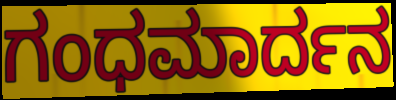
ಗಂಧಮಾರ್ದನ